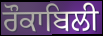
ਰੌਕਾਬਿਲੀ